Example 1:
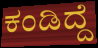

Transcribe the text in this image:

ಕಂಡಿದ್ದೆ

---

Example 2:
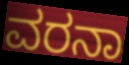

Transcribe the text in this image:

ವರನಾ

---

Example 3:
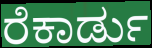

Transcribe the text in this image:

ರೆಕಾರ್ಡು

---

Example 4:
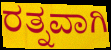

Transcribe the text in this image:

ರತ್ನವಾಗಿ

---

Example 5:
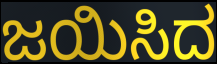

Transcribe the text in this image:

ಜಯಿಸಿದ